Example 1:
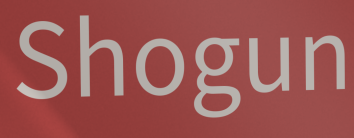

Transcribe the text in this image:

Shogun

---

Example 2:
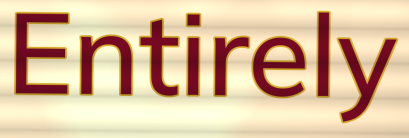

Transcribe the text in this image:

Entirely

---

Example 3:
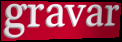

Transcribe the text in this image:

gravar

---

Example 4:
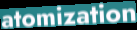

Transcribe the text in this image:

atomization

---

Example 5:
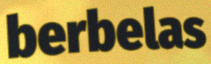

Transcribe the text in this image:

berbelas